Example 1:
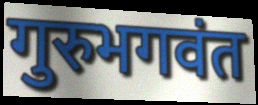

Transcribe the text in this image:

गुरुभगवंत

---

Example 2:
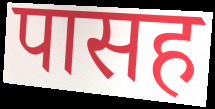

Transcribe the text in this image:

पासह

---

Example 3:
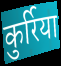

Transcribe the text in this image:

कुर्रिया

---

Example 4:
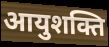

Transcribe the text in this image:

आयुशक्ति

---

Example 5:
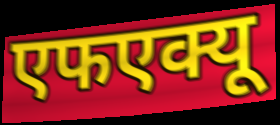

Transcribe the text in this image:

एफएक्यू